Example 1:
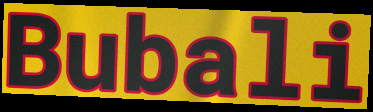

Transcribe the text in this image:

Bubali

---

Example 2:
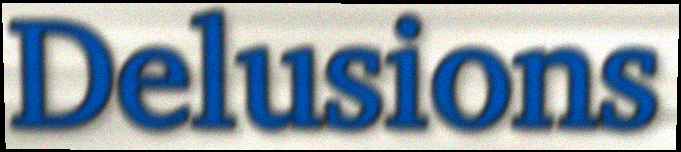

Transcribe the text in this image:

Delusions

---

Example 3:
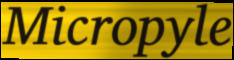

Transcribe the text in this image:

Micropyle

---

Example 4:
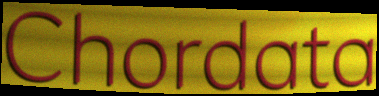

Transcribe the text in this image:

Chordata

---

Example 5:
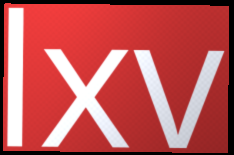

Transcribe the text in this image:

lxv